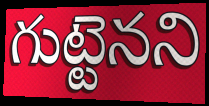
గుట్టెనని